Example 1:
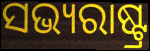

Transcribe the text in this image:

ସଭ୍ୟରାଷ୍ଟ୍ର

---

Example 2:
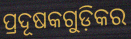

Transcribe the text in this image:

ପ୍ରଦୂଷକଗୁଡ଼ିକର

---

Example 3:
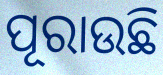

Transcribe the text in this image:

ପୂରାଉଛି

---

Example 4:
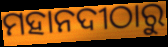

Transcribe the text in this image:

ମହାନଦୀଠାରୁ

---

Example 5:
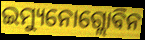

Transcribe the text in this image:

ଇମ୍ୟୁନୋଗ୍ଲୋବିନ